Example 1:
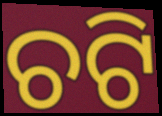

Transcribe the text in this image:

ଚଟି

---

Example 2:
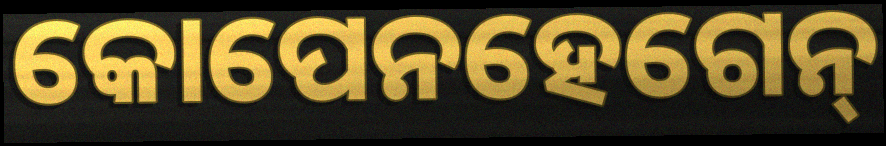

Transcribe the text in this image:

କୋପେନହେଗେନ୍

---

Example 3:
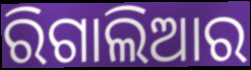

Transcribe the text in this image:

ରିଗାଲିଆର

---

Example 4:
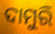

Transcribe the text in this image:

ଦାମୁରି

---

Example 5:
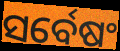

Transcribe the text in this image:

ସର୍ବେଷଂ